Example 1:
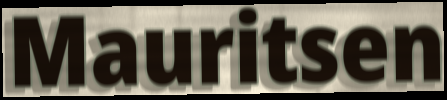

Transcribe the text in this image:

Mauritsen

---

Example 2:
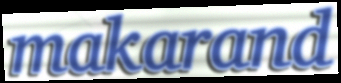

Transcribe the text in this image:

makarand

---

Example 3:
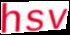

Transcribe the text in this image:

hsv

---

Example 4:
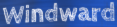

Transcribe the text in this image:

Windward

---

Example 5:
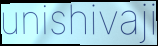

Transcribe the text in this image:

unishivaji